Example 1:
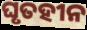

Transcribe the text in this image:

ଘୃତହୀନ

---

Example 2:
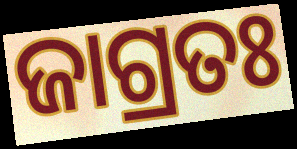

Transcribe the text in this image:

ଜାଗ୍ରତଃ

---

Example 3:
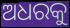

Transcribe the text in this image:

ଅଧରକୁ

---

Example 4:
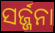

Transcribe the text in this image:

ସର୍ଜ୍ଜନା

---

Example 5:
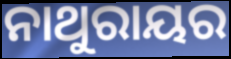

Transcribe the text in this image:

ନାଥୁରାୟର